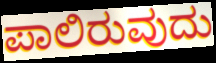
ಪಾಲಿರುವುದು